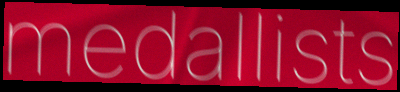
medallists